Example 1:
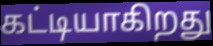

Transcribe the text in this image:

கட்டியாகிறது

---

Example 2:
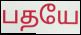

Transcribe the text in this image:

பதயே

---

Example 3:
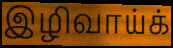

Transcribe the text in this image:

இழிவாய்க்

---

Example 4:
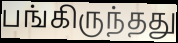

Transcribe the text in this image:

பங்கிருந்தது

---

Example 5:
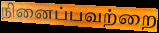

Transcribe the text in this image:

நினைப்பவற்றை